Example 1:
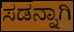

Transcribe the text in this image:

ಸಡನ್ನಾಗಿ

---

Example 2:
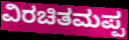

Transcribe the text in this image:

ವಿರಚಿತಮಪ್ಪ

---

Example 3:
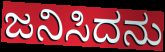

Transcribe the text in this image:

ಜನಿಸಿದನು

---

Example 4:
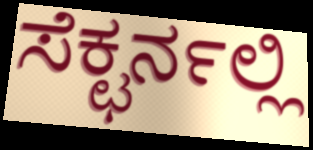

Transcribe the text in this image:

ಸೆಕ್ಟರ್ನಲ್ಲಿ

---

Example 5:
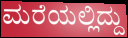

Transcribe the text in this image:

ಮರೆಯಲ್ಲಿದ್ದು